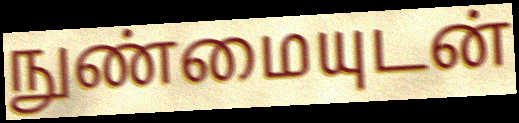
நுண்மையுடன்